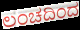
ಲಂಚದಿಂದ